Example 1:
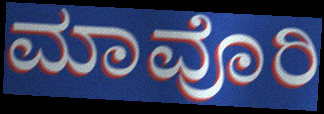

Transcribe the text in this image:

ಮಾವೊರಿ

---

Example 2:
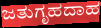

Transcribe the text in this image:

ಜತುಗೃಹದಾಹ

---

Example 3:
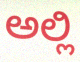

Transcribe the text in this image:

ಅಲ್ಲಿ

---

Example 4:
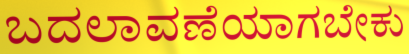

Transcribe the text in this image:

ಬದಲಾವಣೆಯಾಗಬೇಕು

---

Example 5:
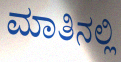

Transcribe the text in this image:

ಮಾತಿನಲ್ಲಿ